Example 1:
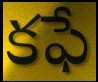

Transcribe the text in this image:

కఫే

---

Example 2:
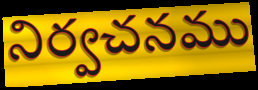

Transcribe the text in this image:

నిర్వచనము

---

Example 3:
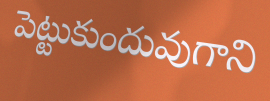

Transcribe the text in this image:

పెట్టుకుందువుగాని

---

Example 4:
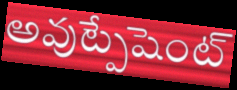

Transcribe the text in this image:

అవుట్పేషెంట్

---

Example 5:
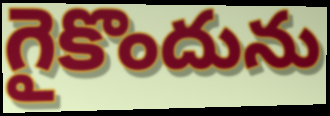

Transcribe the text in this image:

గైకొందును